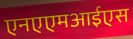
एनएएमआईएस